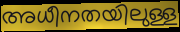
അധീനതയിലുള്ള